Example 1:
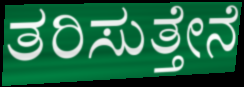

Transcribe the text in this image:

ತರಿಸುತ್ತೇನೆ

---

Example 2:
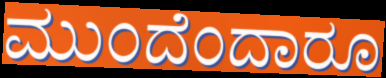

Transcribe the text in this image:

ಮುಂದೆಂದಾರೂ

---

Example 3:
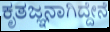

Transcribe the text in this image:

ಕೃತಜ್ಞನಾಗಿದ್ದೇನೆ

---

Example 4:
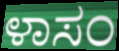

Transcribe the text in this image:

ಳಾಸಂ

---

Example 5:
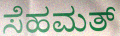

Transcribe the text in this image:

ಸೆಹಮತ್